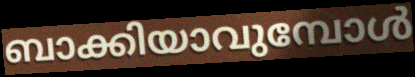
ബാക്കിയാവുമ്പോൾ